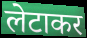
लेटाकर